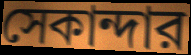
সেকান্দার